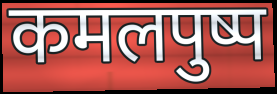
कमलपुष्प